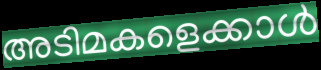
അടിമകളെക്കാൾ